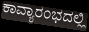
ಕಾವ್ಯಾರಂಭದಲ್ಲಿ